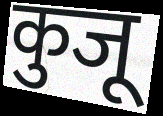
कुजू